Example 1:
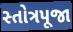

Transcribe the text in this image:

સ્તોત્રપૂજા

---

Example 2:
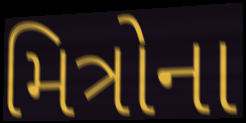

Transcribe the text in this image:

મિત્રોના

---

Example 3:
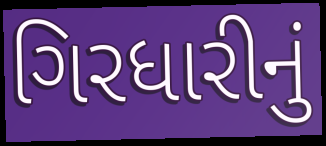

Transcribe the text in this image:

ગિરધારીનું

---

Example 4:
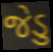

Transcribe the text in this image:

જેડુ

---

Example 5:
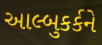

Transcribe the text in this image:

આલ્બુકર્કને